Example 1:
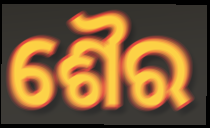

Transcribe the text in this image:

ଶୈର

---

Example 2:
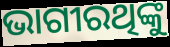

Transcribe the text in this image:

ଭାଗୀରଥିଙ୍କୁ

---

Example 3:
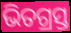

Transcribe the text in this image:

ଭିତଗ୍ରସ୍ତ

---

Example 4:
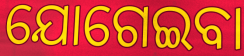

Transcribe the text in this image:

ଯୋଗେଇବା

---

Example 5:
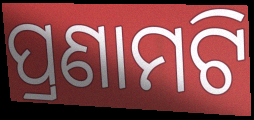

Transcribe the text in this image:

ପ୍ରଣାମଟି